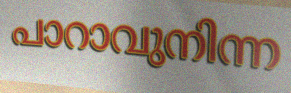
പാറാവുനിന്ന